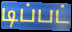
டிப்பட்